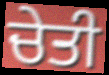
ਚੇਤੀ